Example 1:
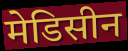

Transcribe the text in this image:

मेडिसीन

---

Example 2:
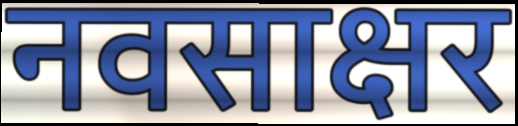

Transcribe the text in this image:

नवसाक्षर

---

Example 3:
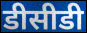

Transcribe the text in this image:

डीसीडी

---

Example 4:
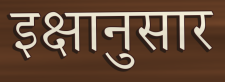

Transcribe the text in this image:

इक्षानुसार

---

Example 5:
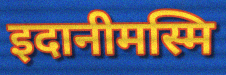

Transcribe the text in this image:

इदानीमस्मि